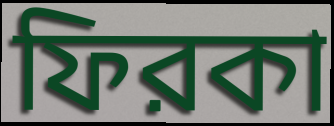
ফিরকা